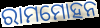
ରାମମୋହନ